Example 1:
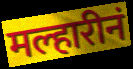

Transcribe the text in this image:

मल्हारीनं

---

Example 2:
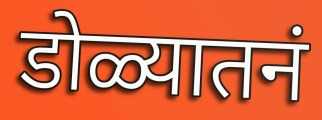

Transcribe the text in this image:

डोळ्यातनं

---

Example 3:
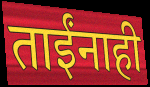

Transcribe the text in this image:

ताईंनाही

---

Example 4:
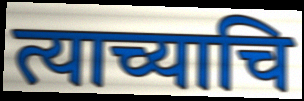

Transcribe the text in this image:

त्याच्याचि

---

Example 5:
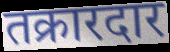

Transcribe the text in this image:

तक्रारदार